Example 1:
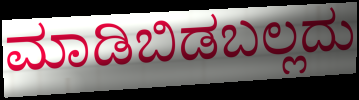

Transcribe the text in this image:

ಮಾಡಿಬಿಡಬಲ್ಲದು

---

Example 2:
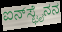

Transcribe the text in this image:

ಐನ್‌ಸ್ಟೈನನ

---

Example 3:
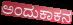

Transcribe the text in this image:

ಅಂದುಕಾಕನ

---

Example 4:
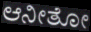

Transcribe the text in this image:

ಆನೀತೋ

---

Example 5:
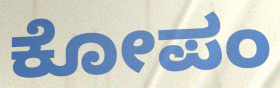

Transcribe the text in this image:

ಕೋಪಂ